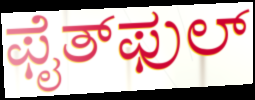
ಫೈತ್‌ಫುಲ್